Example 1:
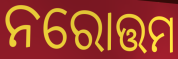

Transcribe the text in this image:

ନରୋତ୍ତମ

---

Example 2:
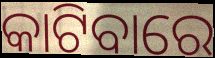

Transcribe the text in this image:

କାଟିବାରେ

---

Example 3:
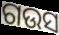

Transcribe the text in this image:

ଗଉସ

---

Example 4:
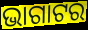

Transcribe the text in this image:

ଭାଗାଟର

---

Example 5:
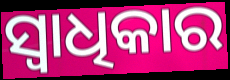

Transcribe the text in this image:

ସ୍ବାଧିକାର